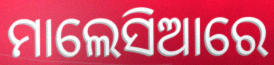
ମାଲେସିଆରେ